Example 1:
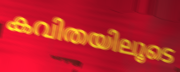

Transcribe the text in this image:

കവിതയിലൂടെ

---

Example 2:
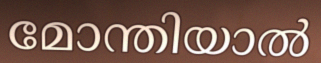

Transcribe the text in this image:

മോന്തിയാൽ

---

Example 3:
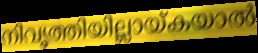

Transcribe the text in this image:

നിവൃത്തിയില്ലായ്കയാൽ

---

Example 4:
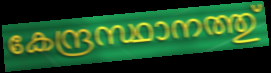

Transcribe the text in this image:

കേന്ദ്രസ്ഥാനത്തു്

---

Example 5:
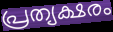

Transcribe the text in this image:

പ്രത്യക്ഷരം